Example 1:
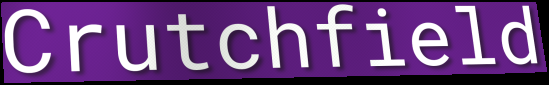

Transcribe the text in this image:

Crutchfield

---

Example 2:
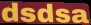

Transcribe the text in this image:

dsdsa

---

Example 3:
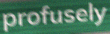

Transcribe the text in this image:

profusely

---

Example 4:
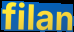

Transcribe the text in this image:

filan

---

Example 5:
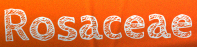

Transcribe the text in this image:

Rosaceae